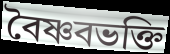
বৈষ্ণবভক্তি